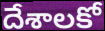
దేశాలకో